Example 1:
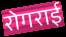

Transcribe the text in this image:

रोगराई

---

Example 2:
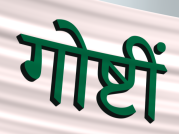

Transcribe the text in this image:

गोष्टीं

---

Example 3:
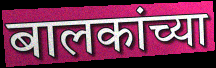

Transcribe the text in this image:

बालकांच्या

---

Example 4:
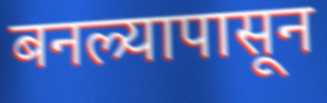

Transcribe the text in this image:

बनल्यापासून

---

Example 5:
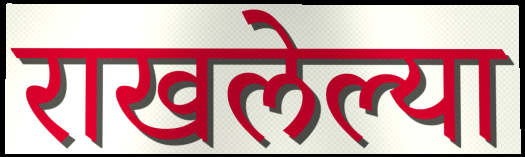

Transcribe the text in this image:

राखलेल्या